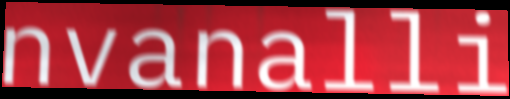
nvanalli